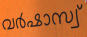
വർഷാസ്വ്